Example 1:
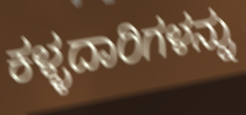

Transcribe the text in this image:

ಕಳ್ಳದಾರಿಗಳನ್ನು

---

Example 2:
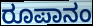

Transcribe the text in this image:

ರೂಪಾನಂ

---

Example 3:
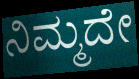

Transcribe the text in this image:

ನಿಮ್ಮದೇ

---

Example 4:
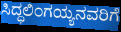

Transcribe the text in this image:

ಸಿದ್ಧಲಿಂಗಯ್ಯನವರಿಗೆ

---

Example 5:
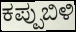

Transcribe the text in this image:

ಕಪ್ಪುಬಿಳಿ